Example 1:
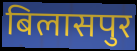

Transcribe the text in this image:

बिलासपुर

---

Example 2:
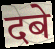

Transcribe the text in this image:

दबे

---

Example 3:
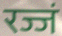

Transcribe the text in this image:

रज्जं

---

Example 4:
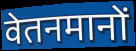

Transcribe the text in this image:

वेतनमानों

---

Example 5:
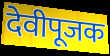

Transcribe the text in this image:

देवीपूजक